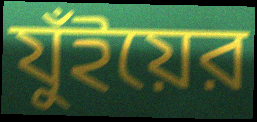
যুঁইয়ের